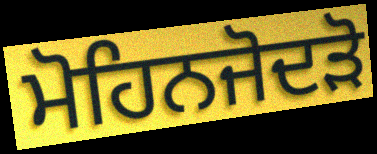
ਮੋਹਿਨਜੋਦੜੋ